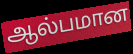
ஆல்பமான